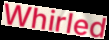
Whirled